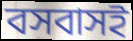
বসবাসই